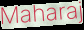
Maharaj